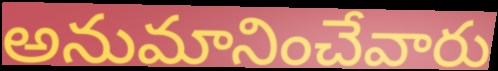
అనుమానించేవారు